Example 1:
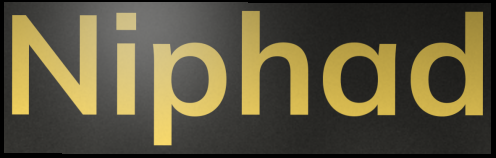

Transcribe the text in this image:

Niphad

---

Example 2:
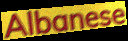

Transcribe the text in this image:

Albanese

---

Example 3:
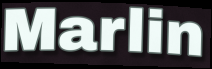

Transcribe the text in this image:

Marlin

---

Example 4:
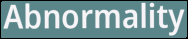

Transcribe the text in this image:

Abnormality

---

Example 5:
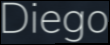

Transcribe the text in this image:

Diego